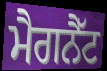
ਮੈਗਨੈੱਟ